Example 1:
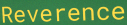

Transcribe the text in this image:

Reverence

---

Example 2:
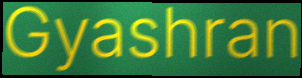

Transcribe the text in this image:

Gyashran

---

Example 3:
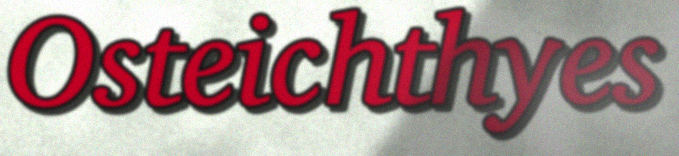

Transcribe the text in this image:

Osteichthyes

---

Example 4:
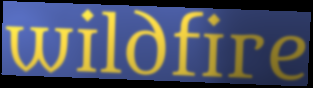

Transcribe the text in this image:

wildfire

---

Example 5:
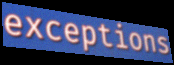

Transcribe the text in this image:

exceptions